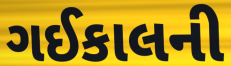
ગઈકાલની